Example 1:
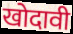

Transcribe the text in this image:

खोदावी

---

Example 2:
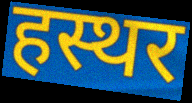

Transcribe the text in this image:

हस्थर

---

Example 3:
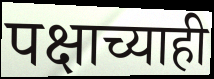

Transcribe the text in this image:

पक्षाच्याही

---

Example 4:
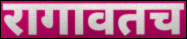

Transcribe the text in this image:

रागावतच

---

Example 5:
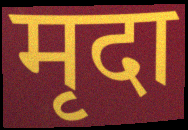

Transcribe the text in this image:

मृदा